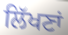
ਲਿੱਖਣਾਂ